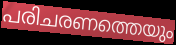
പരിചരണത്തെയും